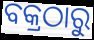
ବକ୍ରଠାରୁ